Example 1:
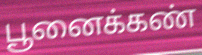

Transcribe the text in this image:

பூனைக்கண்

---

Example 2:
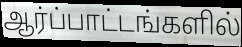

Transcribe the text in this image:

ஆர்ப்பாட்டங்களில்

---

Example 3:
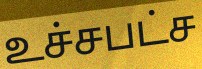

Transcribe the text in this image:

உச்சபட்ச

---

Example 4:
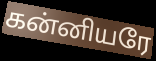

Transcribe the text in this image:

கன்னியரே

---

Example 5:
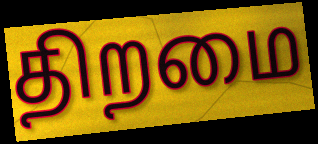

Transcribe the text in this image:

திறமை